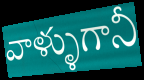
వాళ్ళుగానీ